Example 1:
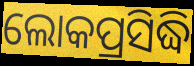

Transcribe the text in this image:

ଲୋକପ୍ରସିଦ୍ଧି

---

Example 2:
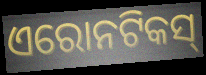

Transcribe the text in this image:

ଏରୋନଟିକସ୍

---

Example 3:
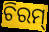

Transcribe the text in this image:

ଚିରମ୍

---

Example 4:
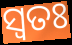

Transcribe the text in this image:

ସ୍ଵତଃ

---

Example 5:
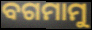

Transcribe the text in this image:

ବଗମାମୁ